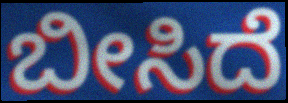
ಬೀಸಿದೆ